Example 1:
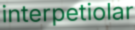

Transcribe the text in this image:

interpetiolar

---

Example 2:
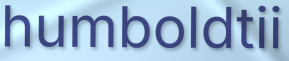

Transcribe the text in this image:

humboldtii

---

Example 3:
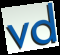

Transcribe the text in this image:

vd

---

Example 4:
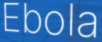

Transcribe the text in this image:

Ebola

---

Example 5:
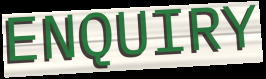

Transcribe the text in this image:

ENQUIRY